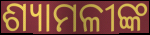
ଶ୍ୟାମଳୀଙ୍କ